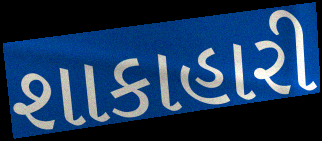
શાકાહારી